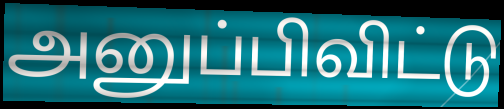
அனுப்பிவிட்டு